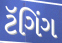
ટૅગિંગ